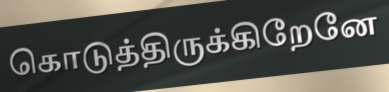
கொடுத்திருக்கிறேனே